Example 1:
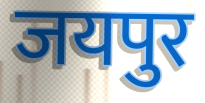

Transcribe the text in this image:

जयपुर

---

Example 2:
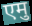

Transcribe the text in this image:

एमु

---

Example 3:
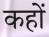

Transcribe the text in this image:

कहों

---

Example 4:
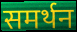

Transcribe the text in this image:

समर्थन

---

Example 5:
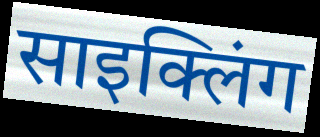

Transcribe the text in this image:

साइक्लिंग